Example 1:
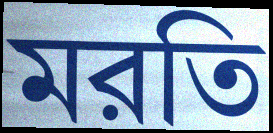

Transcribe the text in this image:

মরতি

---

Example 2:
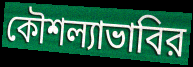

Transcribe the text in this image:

কৌশল্যাভাবির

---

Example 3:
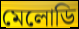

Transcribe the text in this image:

মেলোডি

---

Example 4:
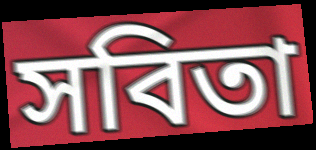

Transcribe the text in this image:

সবিতা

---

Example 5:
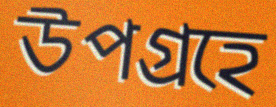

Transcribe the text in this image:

উপগ্রহে